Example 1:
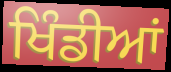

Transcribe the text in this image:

ਖਿੰਡੀਆਂ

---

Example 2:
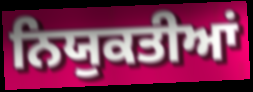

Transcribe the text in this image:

ਨਿਯੁਕਤੀਆਂ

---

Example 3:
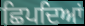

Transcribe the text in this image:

ਛਿਪਦਿਆਂ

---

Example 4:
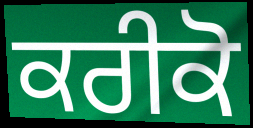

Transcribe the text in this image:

ਕਰੀਕੋ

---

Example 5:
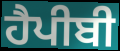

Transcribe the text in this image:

ਹੈਪੀਬੀ